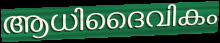
ആധിദൈവികം